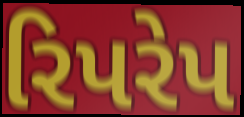
રિપરેપ